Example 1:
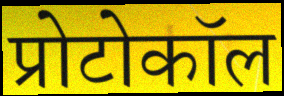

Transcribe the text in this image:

प्रोटोकॉल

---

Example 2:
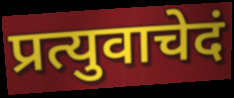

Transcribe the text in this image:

प्रत्युवाचेदं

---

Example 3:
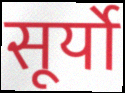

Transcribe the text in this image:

सूर्यो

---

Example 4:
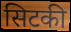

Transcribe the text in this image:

सिटकी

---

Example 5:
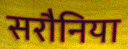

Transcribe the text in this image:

सरौनिया